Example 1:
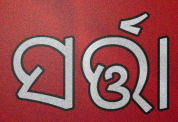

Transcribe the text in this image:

ସର୍ତ୍ତା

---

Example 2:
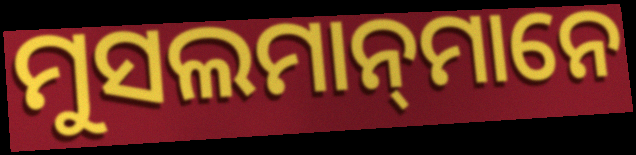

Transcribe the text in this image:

ମୁସଲମାନ୍‌ମାନେ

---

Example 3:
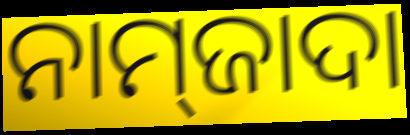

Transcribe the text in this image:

ନାମ୍‍ଜାଦା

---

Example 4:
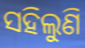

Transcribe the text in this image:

ସହିଲୁଣି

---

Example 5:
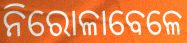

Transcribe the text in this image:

ନିରୋଳାବେଳେ